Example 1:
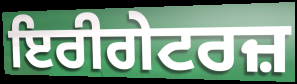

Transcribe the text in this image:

ਇਰੀਗੇਟਰਜ਼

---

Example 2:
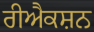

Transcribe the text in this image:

ਰੀਐਕਸ਼ਨ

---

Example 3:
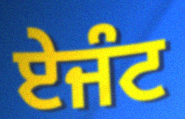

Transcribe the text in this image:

ਏਜੰਟ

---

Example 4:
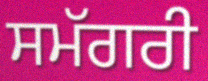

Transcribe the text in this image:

ਸਮੱਗਰੀ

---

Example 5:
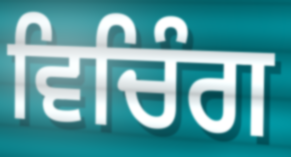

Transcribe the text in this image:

ਵਿਚਿੰਗ